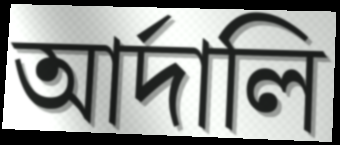
আর্দালি